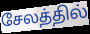
சேலத்தில்